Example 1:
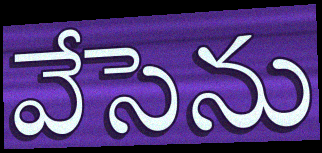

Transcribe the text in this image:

వేసెను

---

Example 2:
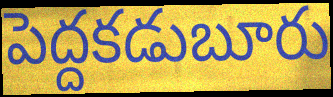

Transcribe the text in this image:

పెద్దకడుబూరు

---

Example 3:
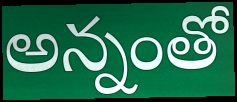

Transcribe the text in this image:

అన్నంతో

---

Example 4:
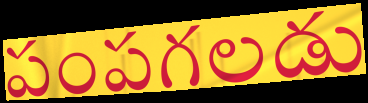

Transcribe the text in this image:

పంపగలడు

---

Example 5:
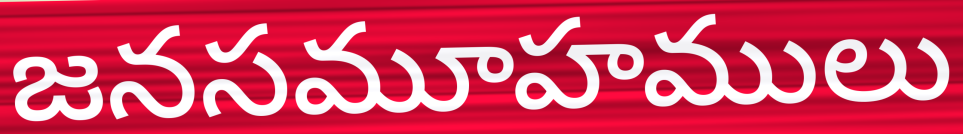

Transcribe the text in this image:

జనసమూహములు